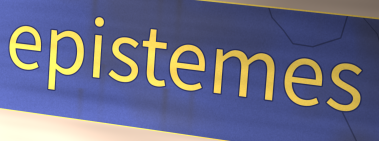
epistemes